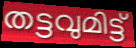
തട്ടവുമിട്ട്